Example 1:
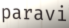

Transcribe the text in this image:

paravi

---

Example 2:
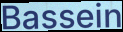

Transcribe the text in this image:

Bassein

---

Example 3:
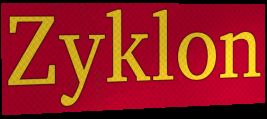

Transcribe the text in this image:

Zyklon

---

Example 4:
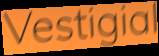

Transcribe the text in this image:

Vestigial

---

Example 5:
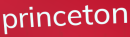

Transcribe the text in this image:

princeton